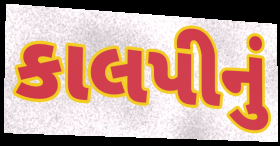
કાલપીનું